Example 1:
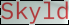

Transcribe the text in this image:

Skyld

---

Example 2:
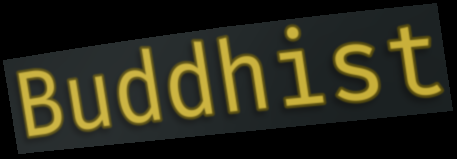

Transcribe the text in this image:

Buddhist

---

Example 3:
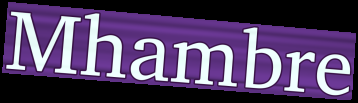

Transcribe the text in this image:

Mhambre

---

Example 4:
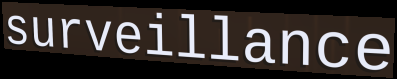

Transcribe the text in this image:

surveillance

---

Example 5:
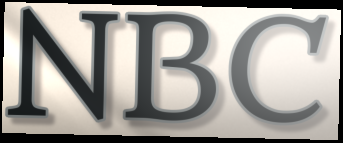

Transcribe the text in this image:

NBC